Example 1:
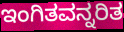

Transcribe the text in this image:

ಇಂಗಿತವನ್ನರಿತ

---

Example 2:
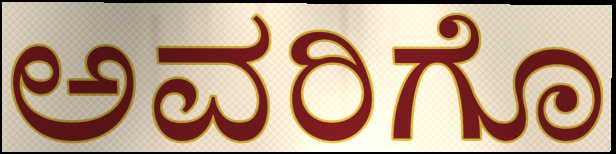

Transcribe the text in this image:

ಅವರಿಗೊ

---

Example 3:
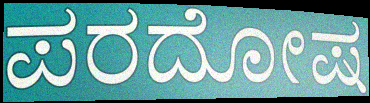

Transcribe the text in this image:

ಪರದೋಷ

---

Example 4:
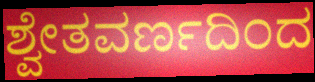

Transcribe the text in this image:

ಶ್ವೇತವರ್ಣದಿಂದ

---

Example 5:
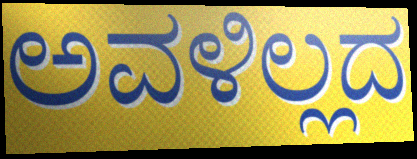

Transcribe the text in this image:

ಅವಳಿಲ್ಲದ